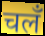
चलँ